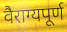
वैराग्यपूर्ण